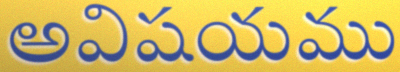
అవిషయము